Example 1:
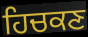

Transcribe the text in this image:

ਹਿਚਕਣ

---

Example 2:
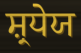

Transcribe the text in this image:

ਸ਼੍ਰਧੇਯ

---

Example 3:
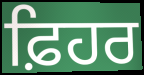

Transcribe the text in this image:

ਫ਼ਿਹਰ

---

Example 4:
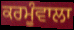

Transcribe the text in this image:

ਕਰਮੂੰਵਾਲਾ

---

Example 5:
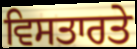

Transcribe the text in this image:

ਵਿਸਤਾਰਤੇ